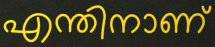
എന്തിനാണ്